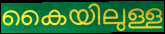
കൈയിലുള്ള